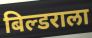
बिल्डराला